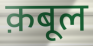
क़बूल